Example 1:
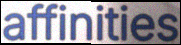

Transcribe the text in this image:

affinities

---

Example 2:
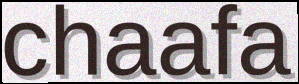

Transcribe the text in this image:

chaafa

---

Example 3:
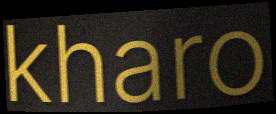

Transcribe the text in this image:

kharo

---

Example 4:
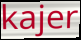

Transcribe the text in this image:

kajer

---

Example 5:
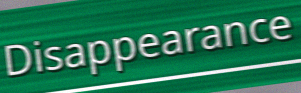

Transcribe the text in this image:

Disappearance